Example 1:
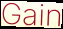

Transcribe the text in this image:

Gain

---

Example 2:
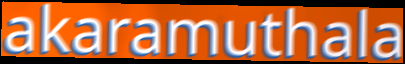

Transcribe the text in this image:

akaramuthala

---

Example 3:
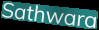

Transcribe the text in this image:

Sathwara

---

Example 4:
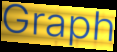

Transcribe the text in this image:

Graph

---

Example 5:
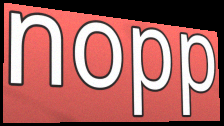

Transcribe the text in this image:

nopp